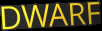
DWARF